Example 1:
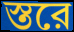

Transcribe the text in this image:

স্তরে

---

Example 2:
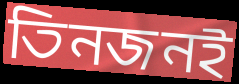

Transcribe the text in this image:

তিনজনই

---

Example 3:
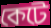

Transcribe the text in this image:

কেটে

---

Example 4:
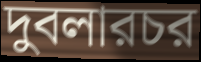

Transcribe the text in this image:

দুবলারচর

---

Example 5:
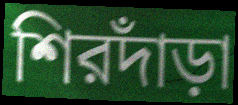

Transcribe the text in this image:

শিরদাঁড়া